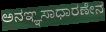
ಅನಞ್ಞಸಾಧಾರಣೇನ